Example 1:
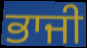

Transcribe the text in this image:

ਭਾਜੀ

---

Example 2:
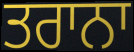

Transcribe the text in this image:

ਤਰਾਨਾ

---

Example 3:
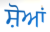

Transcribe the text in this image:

ਸ਼ੋਆਂ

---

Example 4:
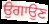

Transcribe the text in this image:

ਉਗਾਉਣ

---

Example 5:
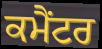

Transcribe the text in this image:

ਕਮੈਂਟਰ